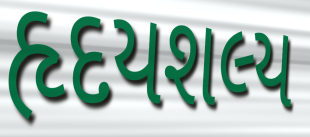
હૃદયશલ્ય